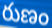
రుణం